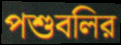
পশুবলির